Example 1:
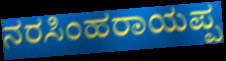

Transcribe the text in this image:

ನರಸಿಂಹರಾಯಪ್ಪ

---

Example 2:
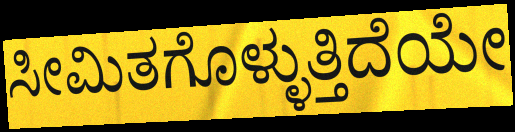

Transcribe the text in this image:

ಸೀಮಿತಗೊಳ್ಳುತ್ತಿದೆಯೇ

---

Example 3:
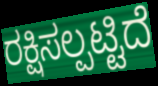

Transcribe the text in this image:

ರಕ್ಷಿಸಲ್ಪಟ್ಟಿದೆ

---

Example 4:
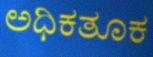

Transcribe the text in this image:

ಅಧಿಕತೂಕ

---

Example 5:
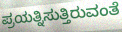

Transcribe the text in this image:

ಪ್ರಯತ್ನಿಸುತ್ತಿರುವಂತೆ